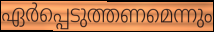
ഏർപ്പെടുത്തണമെന്നും